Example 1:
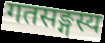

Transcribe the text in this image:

गतसङ्गस्य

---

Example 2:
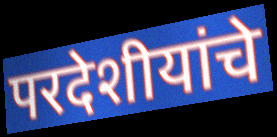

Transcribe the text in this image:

परदेशीयांचे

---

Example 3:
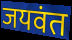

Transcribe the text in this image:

जयवंत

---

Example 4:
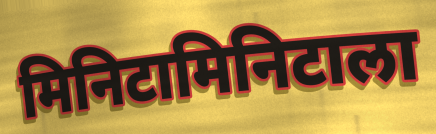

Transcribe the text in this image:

मिनिटामिनिटाला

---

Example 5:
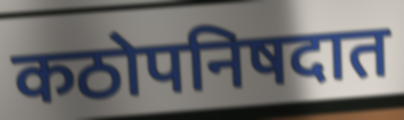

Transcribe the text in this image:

कठोपनिषदात